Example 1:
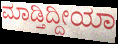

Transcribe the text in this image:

ಮಾಡ್ತಿದ್ದೀಯಾ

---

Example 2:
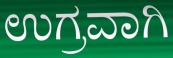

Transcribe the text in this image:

ಉಗ್ರವಾಗಿ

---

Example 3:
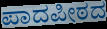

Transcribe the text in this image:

ಪಾದಪೀಠದ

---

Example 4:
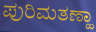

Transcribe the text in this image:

ಪುರಿಮತಣ್ಹಾ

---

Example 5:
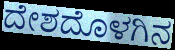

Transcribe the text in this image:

ದೇಶದೊಳಗಿನ